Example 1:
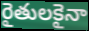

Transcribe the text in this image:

రైతులకైనా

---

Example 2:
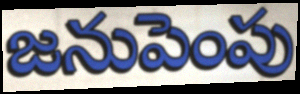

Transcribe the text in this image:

జనుపెంపు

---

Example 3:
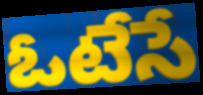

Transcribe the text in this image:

ఓటేసే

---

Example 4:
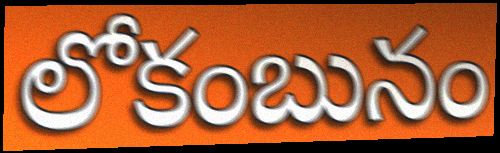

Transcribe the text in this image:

లోకంబునం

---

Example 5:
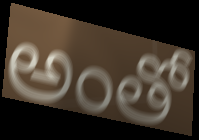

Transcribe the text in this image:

అంతో